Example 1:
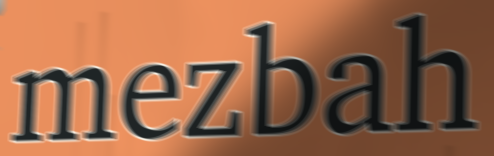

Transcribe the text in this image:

mezbah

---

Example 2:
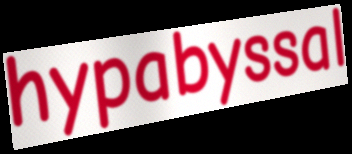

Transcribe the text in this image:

hypabyssal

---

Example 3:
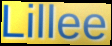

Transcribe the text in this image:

Lillee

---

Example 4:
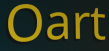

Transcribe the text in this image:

Oart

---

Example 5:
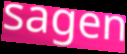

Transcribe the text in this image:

sagen